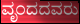
ವೃಂದದವರು